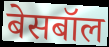
बेसबॉल